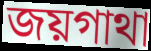
জয়গাথা